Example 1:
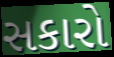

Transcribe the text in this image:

સકારો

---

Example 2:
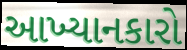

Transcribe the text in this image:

આખ્યાનકારો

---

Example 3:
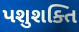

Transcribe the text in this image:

પશુશક્તિ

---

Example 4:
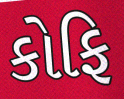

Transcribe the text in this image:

કોફિ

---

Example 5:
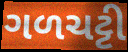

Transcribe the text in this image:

ગળચટ્ટી